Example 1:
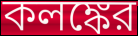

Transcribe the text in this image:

কলঙ্কের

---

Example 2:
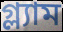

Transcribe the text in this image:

গ্ল্যাম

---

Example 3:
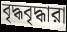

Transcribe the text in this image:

বৃদ্ধবৃদ্ধারা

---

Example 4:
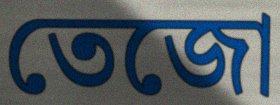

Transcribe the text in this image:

তেজো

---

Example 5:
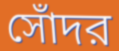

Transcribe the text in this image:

সোঁদর